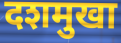
दशमुखा